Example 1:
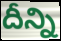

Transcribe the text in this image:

దీన్ని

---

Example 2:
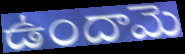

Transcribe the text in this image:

ఉందామె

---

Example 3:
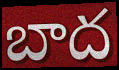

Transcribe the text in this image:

బాద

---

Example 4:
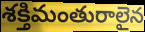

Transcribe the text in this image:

శక్తిమంతురాలైన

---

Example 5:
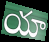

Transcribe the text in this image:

యా